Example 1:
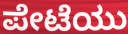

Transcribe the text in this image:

ಪೇಟೆಯು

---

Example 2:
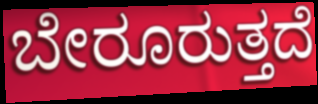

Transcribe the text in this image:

ಬೇರೂರುತ್ತದೆ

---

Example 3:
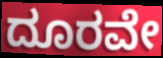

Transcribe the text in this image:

ದೂರವೇ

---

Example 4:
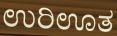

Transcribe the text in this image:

ಉರಿಊತ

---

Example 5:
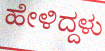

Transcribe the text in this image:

ಹೇಳಿದ್ದಳು